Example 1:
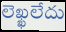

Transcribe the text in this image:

లెఖ్ఖలేదు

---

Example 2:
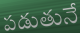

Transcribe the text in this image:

పడుతునే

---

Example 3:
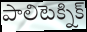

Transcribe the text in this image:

పాలిటెక్నిక్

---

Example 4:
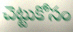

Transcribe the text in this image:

చెట్టుకోసం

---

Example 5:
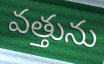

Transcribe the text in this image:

వత్తును